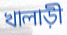
খালাড়ী